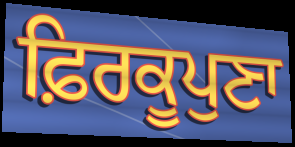
ਫ਼ਿਰਕੂਪੁਣਾ